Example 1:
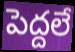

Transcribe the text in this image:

పెద్దలే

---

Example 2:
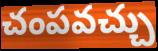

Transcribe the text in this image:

చంపవచ్చు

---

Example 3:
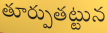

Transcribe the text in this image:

తూర్పుతట్టున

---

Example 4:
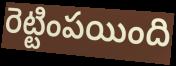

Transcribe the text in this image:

రెట్టింపయింది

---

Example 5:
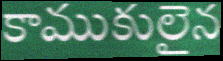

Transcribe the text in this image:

కాముకులైన